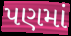
પણમાં